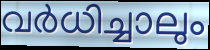
വർധിച്ചാലും